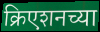
क्रिएशनच्या